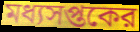
মধ্যসপ্তকের